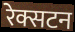
रेक्सटन